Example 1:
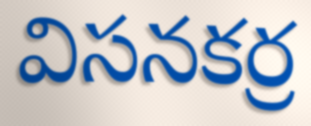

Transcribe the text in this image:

విసనకర్ర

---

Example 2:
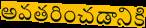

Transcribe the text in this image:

అవతరించడానికి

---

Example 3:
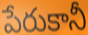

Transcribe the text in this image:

పేరుకానీ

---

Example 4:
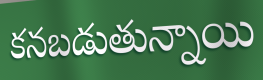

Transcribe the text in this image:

కనబడుతున్నాయి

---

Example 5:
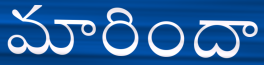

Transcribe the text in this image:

మారిందా